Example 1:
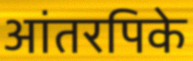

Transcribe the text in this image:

आंतरपिके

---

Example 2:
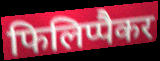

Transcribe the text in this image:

फिलिप्पैकर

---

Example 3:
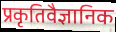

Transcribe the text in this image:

प्रकृतिवैज्ञानिक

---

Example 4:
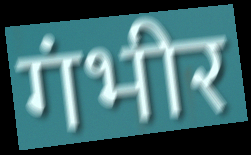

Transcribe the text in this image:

गंभीर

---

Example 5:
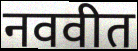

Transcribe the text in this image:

नववीत